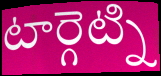
టార్గెట్ని